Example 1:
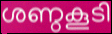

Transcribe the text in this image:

ശണ്ഠകൂടി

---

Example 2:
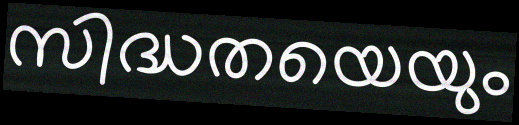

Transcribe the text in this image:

സിദ്ധതയെയും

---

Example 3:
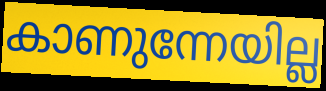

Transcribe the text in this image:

കാണുന്നേയില്ല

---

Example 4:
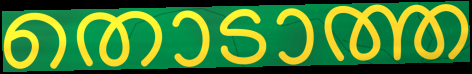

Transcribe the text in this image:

തൊടാത്ത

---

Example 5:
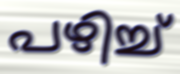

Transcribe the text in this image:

പഴിച്ച്